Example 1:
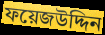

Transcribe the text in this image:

ফয়েজউদ্দিন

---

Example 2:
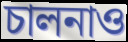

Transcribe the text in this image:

চালনাও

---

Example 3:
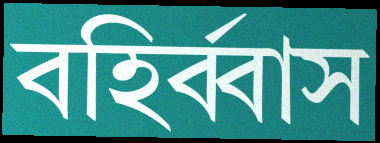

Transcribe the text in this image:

বহির্ব্বাস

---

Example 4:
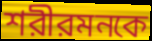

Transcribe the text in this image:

শরীরমনকে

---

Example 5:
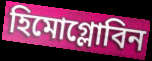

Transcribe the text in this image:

হিমোগ্লোবিন